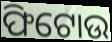
ଫିଟୋଉ